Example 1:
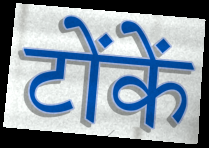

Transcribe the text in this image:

टोंकें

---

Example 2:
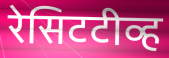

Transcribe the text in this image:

रेसिटटीव्ह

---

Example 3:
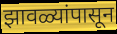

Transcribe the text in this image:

झावळ्यांपासून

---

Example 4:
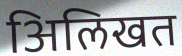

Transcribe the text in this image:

अिलिखत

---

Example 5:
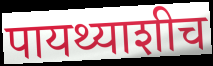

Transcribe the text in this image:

पायथ्याशीच